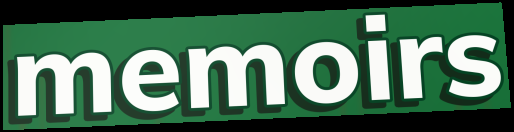
memoirs